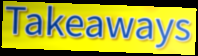
Takeaways